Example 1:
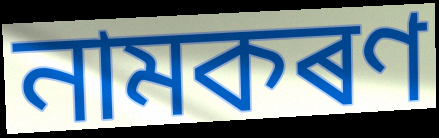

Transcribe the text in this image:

নামকৰণ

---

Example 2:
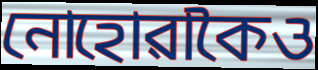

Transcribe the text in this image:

নোহোৱাকৈও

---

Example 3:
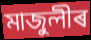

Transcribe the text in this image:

মাজুলীৰ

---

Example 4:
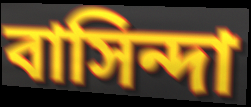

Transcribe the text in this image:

বাসিন্দা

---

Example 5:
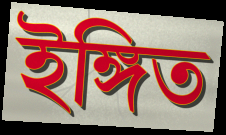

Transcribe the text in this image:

ইঙ্গিত